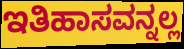
ಇತಿಹಾಸವನ್ನಲ್ಲ